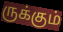
ருக்கும்